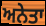
ਅਨੇਤਾ